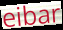
eibar